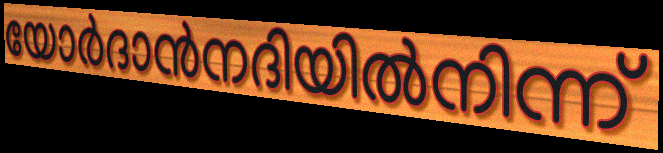
യോർദാൻനദിയിൽനിന്ന്